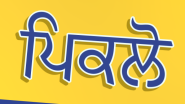
ਪਿਕਲੋ